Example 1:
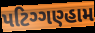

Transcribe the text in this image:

પટિગ્ગણ્હામ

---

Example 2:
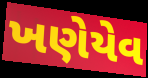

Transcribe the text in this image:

ખણેયેવ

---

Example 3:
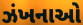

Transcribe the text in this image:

ઝંખનાઓ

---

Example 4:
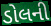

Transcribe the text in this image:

ડોલની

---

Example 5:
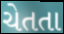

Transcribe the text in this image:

ચેતતા